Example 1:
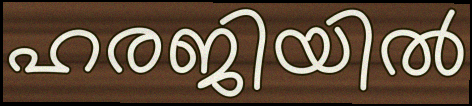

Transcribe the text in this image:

ഹരജിയിൽ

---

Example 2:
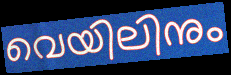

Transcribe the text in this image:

വെയിലിനും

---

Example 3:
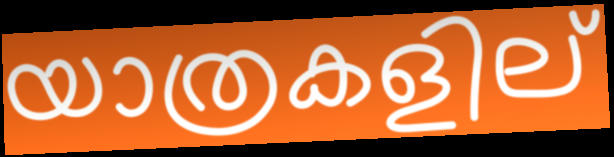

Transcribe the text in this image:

യാത്രകളില്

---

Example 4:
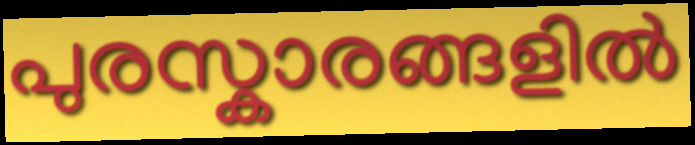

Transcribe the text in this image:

പുരസ്കാരങ്ങളിൽ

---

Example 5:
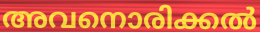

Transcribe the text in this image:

അവനൊരിക്കൽ